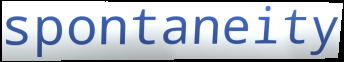
spontaneity